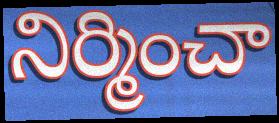
నిర్మించా